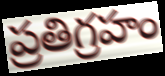
ప్రతిగ్రహం